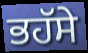
ਭਹੱਸੇ